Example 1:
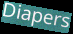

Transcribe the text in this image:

Diapers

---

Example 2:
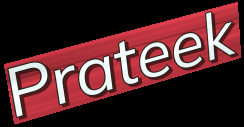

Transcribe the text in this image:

Prateek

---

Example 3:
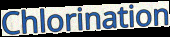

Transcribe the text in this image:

Chlorination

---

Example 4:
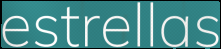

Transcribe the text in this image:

estrellas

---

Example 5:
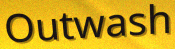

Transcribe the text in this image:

Outwash